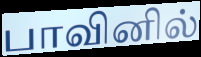
பாவினில்